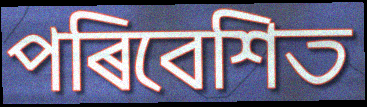
পৰিবেশিত